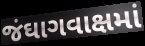
જંઘાગવાક્ષમાં